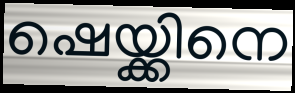
ഷെയ്ക്കിനെ